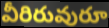
వీరిరువురూ